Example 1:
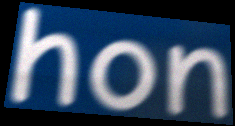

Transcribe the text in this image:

hon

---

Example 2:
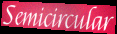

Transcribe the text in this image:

Semicircular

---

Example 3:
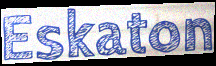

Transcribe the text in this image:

Eskaton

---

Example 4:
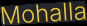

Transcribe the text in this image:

Mohalla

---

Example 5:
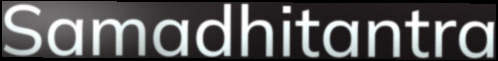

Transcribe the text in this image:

Samadhitantra